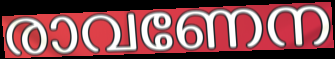
രാവണേന